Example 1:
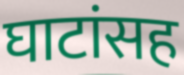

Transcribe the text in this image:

घाटांसह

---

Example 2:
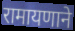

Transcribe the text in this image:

रामायणाने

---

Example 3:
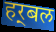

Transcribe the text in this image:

हर्बल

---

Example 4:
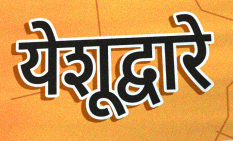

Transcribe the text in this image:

येशूद्वारे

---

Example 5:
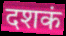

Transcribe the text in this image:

दशकं